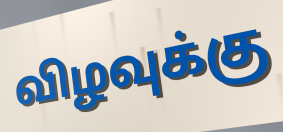
விழவுக்கு